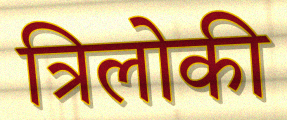
त्रिलोकी